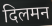
दिलमन